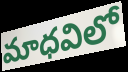
మాధవిలో